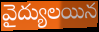
వైద్యులయిన